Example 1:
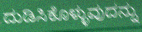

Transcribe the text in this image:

ದುಡಿಸಿಕೊಳ್ಳುವುದನ್ನು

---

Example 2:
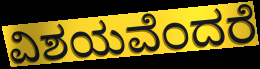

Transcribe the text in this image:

ವಿಶಯವೆಂದರೆ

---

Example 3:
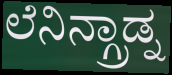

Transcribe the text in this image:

ಲೆನಿನ್ಗ್ರಾಡ್ನ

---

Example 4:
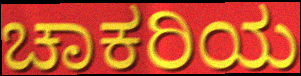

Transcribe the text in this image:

ಚಾಕರಿಯ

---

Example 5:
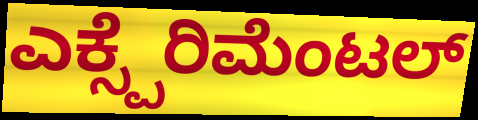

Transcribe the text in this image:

ಎಕ್ಸ್ಪೆರಿಮೆಂಟಲ್